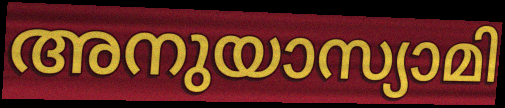
അനുയാസ്യാമി